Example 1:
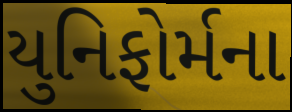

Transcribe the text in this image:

યુનિફોર્મના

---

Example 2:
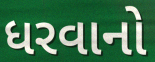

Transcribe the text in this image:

ધરવાનો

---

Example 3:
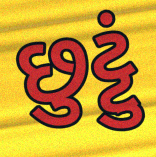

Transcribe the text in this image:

છુટ્ટું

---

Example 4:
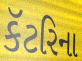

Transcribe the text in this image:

કૅટરિના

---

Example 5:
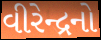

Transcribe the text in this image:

વીરેન્દ્રનો